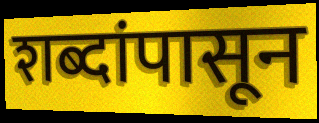
शब्दांपासून